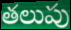
తలుపు